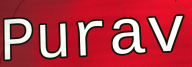
Purav